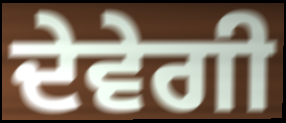
ਦੇਵੇਗੀ